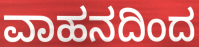
ವಾಹನದಿಂದ